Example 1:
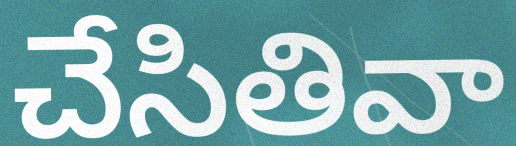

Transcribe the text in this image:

చేసితివా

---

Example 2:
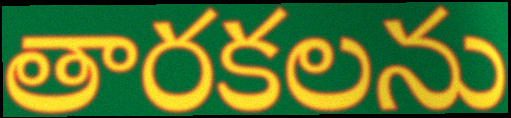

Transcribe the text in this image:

తారకలను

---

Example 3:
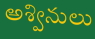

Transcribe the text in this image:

అశ్వినులు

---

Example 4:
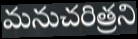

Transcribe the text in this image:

మనుచరిత్రని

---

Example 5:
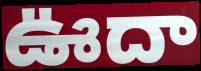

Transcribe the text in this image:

ఊదా